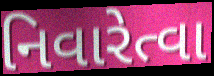
નિવારેત્વા